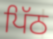
ਪਿੱਠ